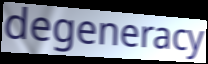
degeneracy